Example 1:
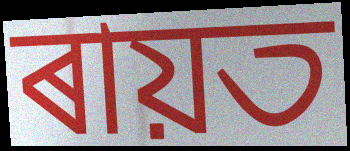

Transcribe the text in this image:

ৰায়ত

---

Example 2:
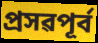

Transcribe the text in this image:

প্ৰসৱপূৰ্ব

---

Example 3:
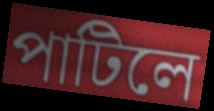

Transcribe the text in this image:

পাটিলে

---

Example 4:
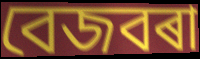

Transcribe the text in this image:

বেজবৰা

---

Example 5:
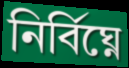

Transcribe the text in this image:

নিৰ্বিঘ্নে